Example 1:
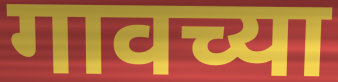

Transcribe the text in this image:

गावच्या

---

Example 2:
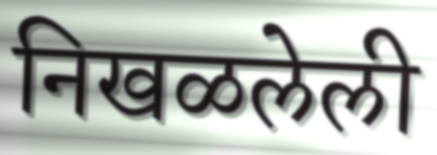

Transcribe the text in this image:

निखळलेली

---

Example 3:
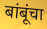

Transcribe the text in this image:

बांबूंचा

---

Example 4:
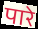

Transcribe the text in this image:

पारे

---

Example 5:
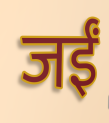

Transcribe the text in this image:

जईं